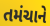
તમંચાને